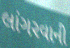
લાંગરવાની